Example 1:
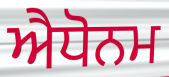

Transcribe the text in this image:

ਐਧੋਨਮ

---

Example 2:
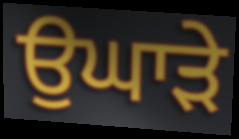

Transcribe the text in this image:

ਉਘਾੜੇ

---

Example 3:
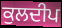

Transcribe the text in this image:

ਕੁਲਦੀਪ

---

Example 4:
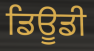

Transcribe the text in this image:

ਡਿਊਡੀ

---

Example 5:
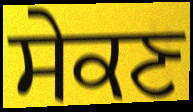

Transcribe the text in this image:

ਸੇਕਣ